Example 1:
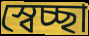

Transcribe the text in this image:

স্বেচ্ছা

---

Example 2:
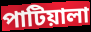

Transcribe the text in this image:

পাটিয়ালা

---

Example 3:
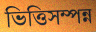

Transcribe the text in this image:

ভিত্তিসম্পন্ন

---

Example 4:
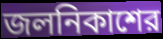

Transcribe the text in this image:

জলনিকাশের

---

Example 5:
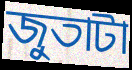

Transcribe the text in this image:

জুতাটা